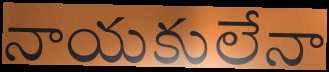
నాయకులేనా